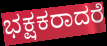
ಭಕ್ಷಕರಾದರೆ